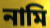
নামি